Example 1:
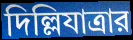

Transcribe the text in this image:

দিল্লিযাত্রার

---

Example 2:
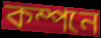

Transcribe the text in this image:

কম্পনে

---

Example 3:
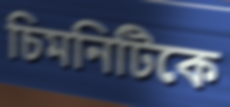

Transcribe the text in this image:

চিমনিটিকে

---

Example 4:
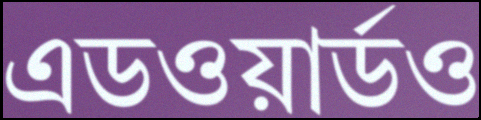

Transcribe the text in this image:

এডওয়ার্ডও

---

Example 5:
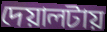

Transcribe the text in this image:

দেয়ালটায়